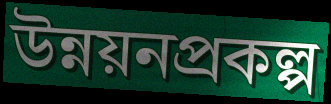
উন্নয়নপ্রকল্প